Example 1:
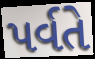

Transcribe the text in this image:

પર્વતે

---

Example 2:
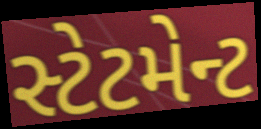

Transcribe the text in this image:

સ્ટેટમેન્ટ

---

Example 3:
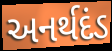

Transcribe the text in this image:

અનર્થદંડ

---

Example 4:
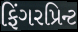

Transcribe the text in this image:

ફિંગરપ્રિન્ટ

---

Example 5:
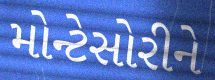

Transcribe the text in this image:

મોન્ટેસોરીને